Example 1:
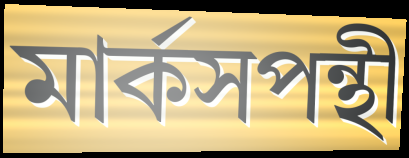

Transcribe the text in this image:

মার্কসপন্থী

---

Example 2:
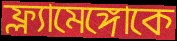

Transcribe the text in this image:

ফ্ল্যামেঙ্গোকে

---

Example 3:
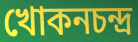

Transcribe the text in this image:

খোকনচন্দ্র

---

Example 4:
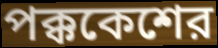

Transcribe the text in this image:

পক্ককেশের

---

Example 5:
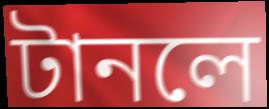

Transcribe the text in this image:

টানলে